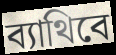
ব্যাথিবে